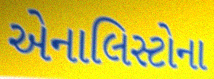
એનાલિસ્ટોના